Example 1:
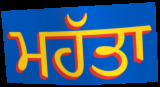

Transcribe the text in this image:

ਮਹੱਤਾ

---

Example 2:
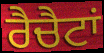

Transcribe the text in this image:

ਰੈਚੈਟਾਂ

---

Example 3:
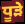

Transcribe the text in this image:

ਧੂੜੇ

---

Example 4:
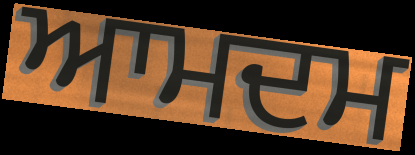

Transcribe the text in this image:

ਆਮਦਮ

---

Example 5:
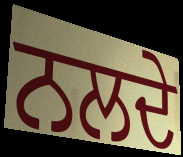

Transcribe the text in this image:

ਨਲਦੇ